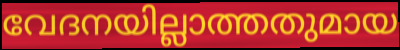
വേദനയില്ലാത്തതുമായ